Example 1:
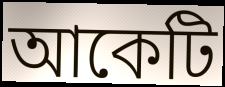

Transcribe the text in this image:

আকেটি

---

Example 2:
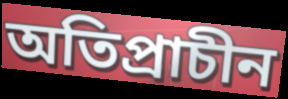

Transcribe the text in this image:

অতিপ্রাচীন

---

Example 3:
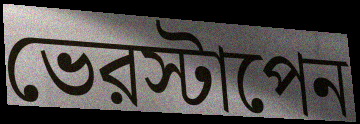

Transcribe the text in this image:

ভেরস্টাপেন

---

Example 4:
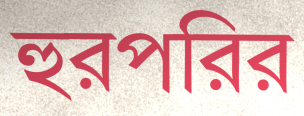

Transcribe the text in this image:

হুরপরির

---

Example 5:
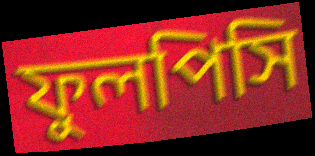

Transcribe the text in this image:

ফুলপিসি